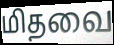
மிதவை